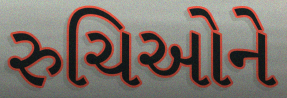
રુચિઓને